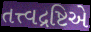
તત્ત્વદ્રષ્ટિએ